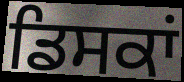
ਡਿਸਕਾਂ